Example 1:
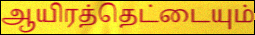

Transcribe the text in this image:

ஆயிரத்தெட்டையும்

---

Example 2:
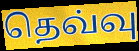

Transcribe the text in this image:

தெவ்வு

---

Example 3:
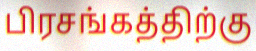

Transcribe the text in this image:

பிரசங்கத்திற்கு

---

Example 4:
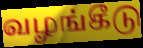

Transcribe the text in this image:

வழங்கீடு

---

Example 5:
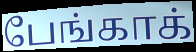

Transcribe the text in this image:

பேங்காக்